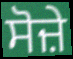
ਸੋਜ਼ੇ